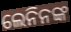
ଲେନିନଙ୍କ